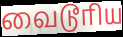
வைடூரிய